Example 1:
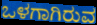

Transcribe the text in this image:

ಒಳಗಾಗಿರುವ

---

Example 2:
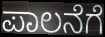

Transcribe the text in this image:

ಪಾಲನೆಗೆ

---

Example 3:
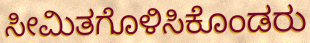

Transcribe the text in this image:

ಸೀಮಿತಗೊಳಿಸಿಕೊಂಡರು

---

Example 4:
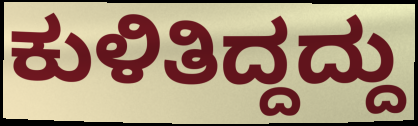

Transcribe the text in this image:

ಕುಳಿತಿದ್ದದ್ದು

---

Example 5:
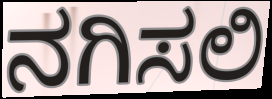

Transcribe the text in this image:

ನಗಿಸಲಿ